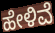
ಹೇಳಿವೆ